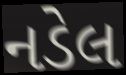
નડેલ